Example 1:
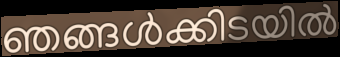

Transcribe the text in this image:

ഞങ്ങൾക്കിടയിൽ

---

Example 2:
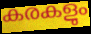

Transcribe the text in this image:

കരകളും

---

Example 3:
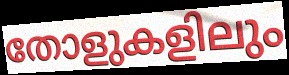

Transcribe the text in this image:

തോളുകളിലും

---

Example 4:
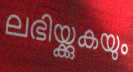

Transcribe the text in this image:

ലഭിയ്ക്കുകയും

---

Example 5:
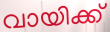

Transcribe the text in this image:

വായിക്ക്